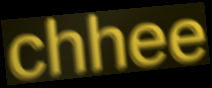
chhee